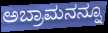
ಅಬ್ರಾಮನನ್ನೂ